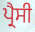
ਪ੍ਰੈਸੀ